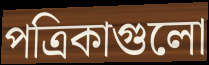
পত্রিকাগুলো